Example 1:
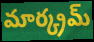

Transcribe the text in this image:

మార్క్రమ్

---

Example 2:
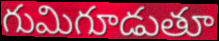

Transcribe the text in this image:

గుమిగూడుతూ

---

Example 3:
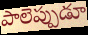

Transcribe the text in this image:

పాలెప్పుడూ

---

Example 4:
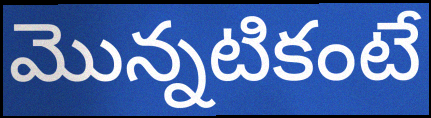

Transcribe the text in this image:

మొన్నటికంటే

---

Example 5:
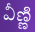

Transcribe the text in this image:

వీణ్ణి